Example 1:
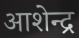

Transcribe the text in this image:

आशेन्द्र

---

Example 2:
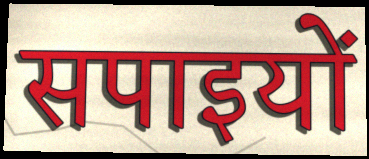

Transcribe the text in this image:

सपाइयों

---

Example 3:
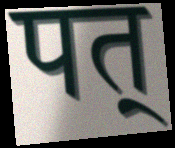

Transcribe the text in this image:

पत्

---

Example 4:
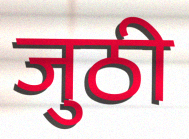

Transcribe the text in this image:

जुठी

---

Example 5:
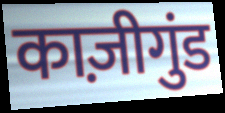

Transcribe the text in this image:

काज़ीगुंड